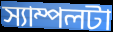
স্যাম্পলটা